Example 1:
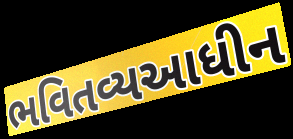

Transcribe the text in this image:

ભવિતવ્યઆધીન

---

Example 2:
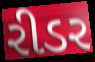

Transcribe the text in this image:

રીડર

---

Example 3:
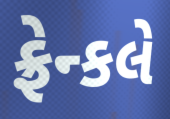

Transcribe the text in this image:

ફ્રેન્કલે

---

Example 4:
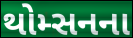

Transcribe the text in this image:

થોમ્સનના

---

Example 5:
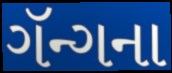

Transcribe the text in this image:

ગૅન્ગના